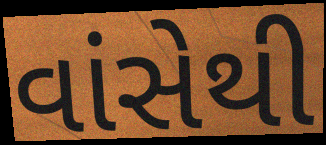
વાંસેથી